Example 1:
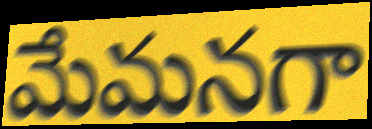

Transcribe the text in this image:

మేమనగా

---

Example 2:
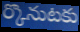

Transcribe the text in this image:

ర్కొనుటకు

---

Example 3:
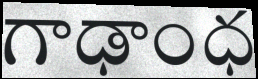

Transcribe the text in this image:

గాఢాంధ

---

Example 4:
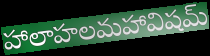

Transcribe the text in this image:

హాలాహలమహావిషమ్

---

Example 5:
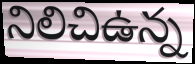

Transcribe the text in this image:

నిలిచిఉన్న